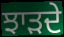
ਝਾੜਦੇ